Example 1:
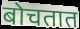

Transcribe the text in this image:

बोचतात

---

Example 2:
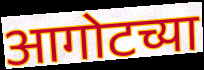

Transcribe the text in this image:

आगोटच्या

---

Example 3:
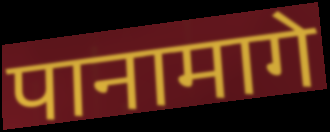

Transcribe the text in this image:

पानामागे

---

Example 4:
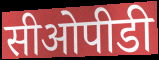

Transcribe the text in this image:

सीओपीडी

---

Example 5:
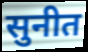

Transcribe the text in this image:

सुनीत